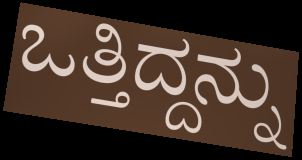
ಒತ್ತಿದ್ದನ್ನು